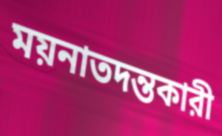
ময়নাতদন্তকারী